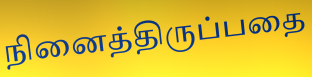
நினைத்திருப்பதை